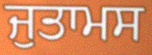
ਜੁਤਾਮਸ